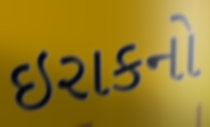
ઇરાકનો